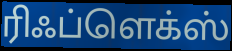
ரிஃப்ளெக்ஸ்